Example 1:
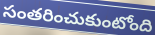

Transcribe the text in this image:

సంతరించుకుంటోంది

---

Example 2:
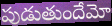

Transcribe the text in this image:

పుడుతుందేమో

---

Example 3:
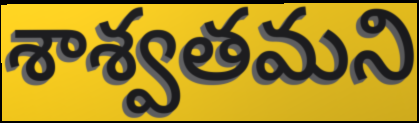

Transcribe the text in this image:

శాశ్వతమని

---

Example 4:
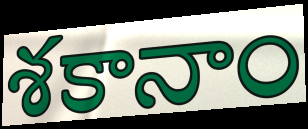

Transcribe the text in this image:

శకానాం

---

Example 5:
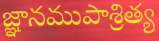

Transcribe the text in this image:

జ్ఞానముపాశ్రిత్య